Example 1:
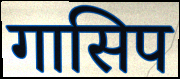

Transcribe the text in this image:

गासिप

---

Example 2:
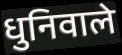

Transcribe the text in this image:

धुनिवाले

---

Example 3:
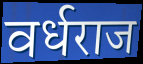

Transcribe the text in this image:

वर्धराज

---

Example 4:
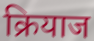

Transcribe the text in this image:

क्रियाज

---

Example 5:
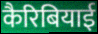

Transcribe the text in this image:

कैरिबियाई